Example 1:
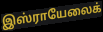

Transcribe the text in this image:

இஸ்ராயேலைக்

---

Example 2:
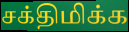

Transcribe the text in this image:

சக்திமிக்க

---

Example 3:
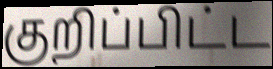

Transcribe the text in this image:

குறிப்பிட்ட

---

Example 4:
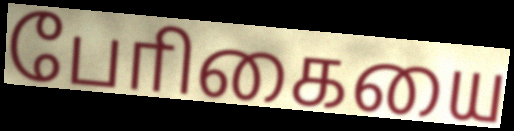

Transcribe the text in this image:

பேரிகையை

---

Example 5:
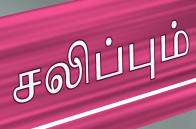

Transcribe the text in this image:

சலிப்பும்